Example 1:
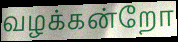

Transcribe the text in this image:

வழக்கன்றோ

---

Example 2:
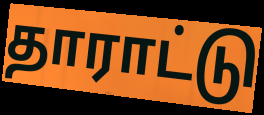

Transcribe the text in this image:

தாராட்டு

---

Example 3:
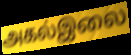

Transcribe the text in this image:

அகல்இலை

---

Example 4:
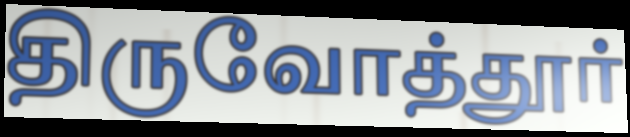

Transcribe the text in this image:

திருவோத்தூர்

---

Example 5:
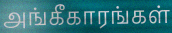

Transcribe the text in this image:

அங்கீகாரங்கள்